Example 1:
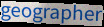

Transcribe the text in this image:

geographer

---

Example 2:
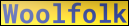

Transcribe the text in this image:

Woolfolk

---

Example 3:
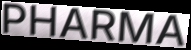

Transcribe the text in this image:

PHARMA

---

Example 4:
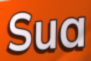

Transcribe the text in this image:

Sua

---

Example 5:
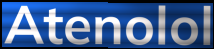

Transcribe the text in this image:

Atenolol